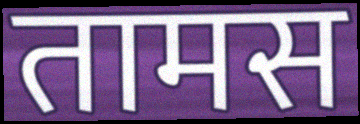
तामस